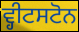
ਵ੍ਹੀਟਸਟੋਨ